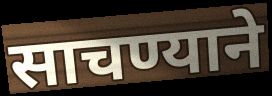
साचण्याने